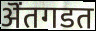
ऄंतगडत